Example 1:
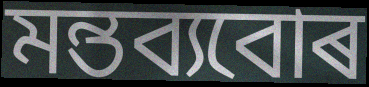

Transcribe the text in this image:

মন্তব্যবোৰ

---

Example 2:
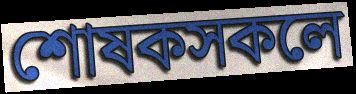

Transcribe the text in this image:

শোষকসকলে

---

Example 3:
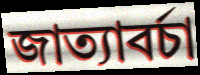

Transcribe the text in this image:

জাত্যাবৰ্চা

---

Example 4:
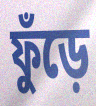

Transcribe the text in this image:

ফুঁড়ে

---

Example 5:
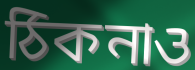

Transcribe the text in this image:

ঠিকনাও